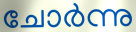
ചോർന്നു